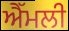
ਐੱਮਲੀ